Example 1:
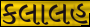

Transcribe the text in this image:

કલાલહ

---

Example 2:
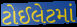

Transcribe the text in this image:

ટોઈલેટમાં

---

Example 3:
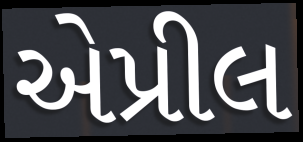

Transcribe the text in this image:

એપ્રીલ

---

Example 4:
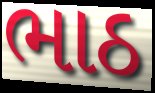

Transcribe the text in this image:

ભાઠ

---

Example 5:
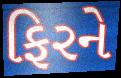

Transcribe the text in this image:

ફિરને